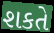
શકતે